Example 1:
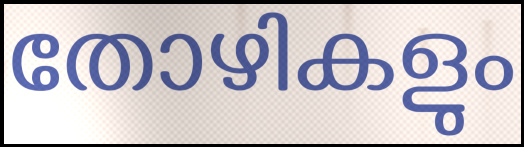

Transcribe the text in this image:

തോഴികളും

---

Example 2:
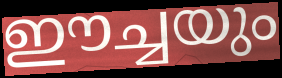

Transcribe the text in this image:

ഈച്ചയും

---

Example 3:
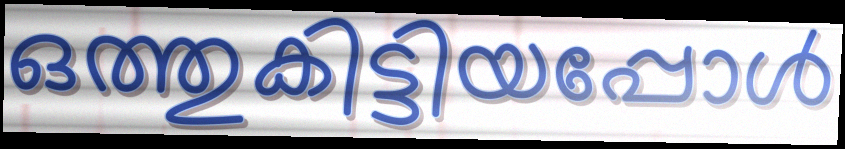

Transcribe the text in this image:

ഒത്തുകിട്ടിയപ്പോൾ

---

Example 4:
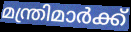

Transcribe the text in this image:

മന്ത്രിമാർക്ക്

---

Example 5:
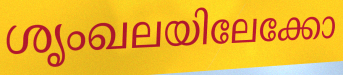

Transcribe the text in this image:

ശൃംഖലയിലേക്കോ